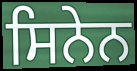
ਸਿਨੇਨ